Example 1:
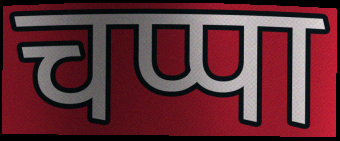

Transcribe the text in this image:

चप्पा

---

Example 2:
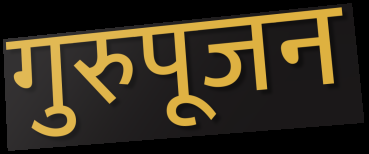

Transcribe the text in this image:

गुरुपूजन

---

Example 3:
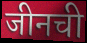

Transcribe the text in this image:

जीनची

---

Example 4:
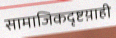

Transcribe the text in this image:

सामाजिकदृष्टय़ाही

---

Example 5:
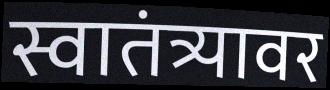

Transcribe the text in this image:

स्वातंत्र्यावर